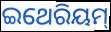
ଇଥେରିୟମ୍